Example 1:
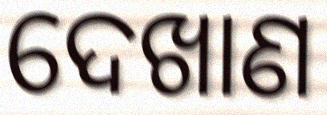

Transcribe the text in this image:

ଦେଖାଣ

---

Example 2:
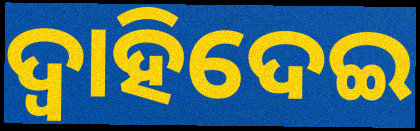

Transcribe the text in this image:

ଦ୍ବାହିଦେଇ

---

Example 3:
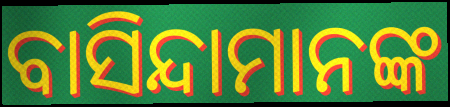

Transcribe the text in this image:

ବାସିନ୍ଦାମାନଙ୍କ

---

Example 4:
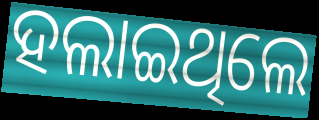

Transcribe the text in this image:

ହଲାଇଥିଲେ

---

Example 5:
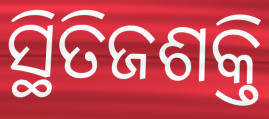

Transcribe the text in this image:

ସ୍ଥିତିଜଶକ୍ତି